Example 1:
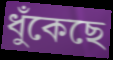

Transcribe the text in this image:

ধুঁকেছে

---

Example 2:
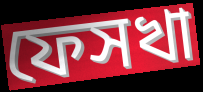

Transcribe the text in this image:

ফেসখা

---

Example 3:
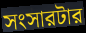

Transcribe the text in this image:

সংসারটার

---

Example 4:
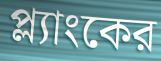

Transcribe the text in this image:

প্ল্যাংকের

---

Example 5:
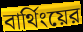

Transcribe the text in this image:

বার্থিংয়ের